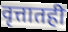
वृत्तातही